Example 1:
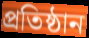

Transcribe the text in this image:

প্ৰতিষ্ঠান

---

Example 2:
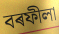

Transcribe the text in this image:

বৰফীলা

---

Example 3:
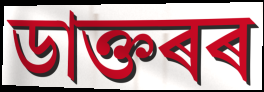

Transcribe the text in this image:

ডাক্তৰৰ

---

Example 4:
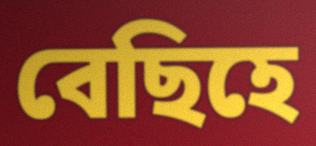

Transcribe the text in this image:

বেছিহে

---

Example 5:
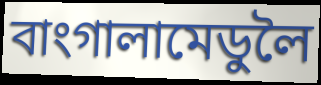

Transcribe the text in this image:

বাংগালামেডুলৈ